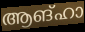
ആങ്ഹാ